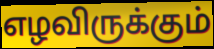
எழவிருக்கும்